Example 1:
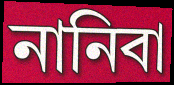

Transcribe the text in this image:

নানিবা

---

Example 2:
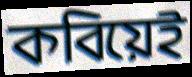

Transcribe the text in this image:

কবিয়েই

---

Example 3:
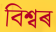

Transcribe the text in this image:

বিশ্বৰ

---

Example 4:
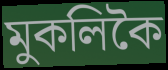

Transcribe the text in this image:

মুকলিকৈ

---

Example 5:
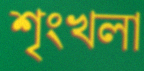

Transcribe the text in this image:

শৃংখলা